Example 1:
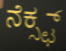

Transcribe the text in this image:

ನೆಕ್ಸ್ಟ್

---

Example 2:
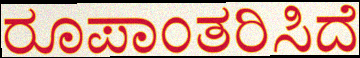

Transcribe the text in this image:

ರೂಪಾಂತರಿಸಿದೆ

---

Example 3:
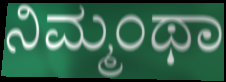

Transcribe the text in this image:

ನಿಮ್ಮಂಥಾ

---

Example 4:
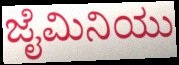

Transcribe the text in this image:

ಜೈಮಿನಿಯು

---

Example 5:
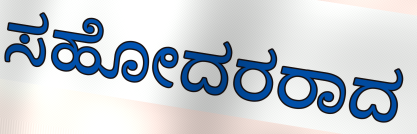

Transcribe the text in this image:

ಸಹೋದರರಾದ